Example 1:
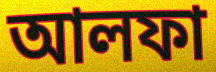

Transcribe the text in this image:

আলফা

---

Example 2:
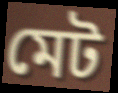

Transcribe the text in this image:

মেট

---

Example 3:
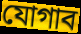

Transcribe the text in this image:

যোগাব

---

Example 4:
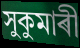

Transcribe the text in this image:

সুকুমাৰী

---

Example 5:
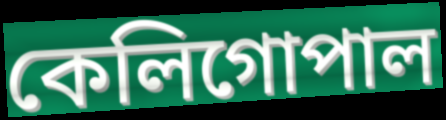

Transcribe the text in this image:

কেলিগোপাল